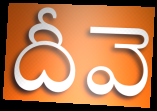
దీవె